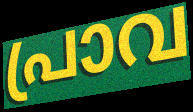
പ്രാവ